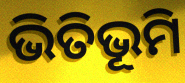
ଭିତିଭୂମି